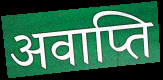
अवाप्ति